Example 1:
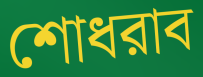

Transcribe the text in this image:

শোধরাব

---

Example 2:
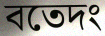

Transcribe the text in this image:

বতেদং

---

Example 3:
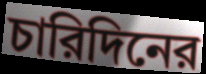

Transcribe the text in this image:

চারিদিনের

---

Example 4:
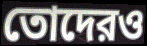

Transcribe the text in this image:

তোদেরও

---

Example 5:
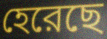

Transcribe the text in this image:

হেরেছে